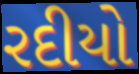
રદીયો